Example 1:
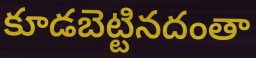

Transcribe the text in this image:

కూడబెట్టినదంతా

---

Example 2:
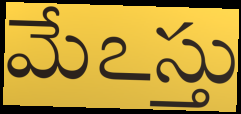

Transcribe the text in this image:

మేఽస్తు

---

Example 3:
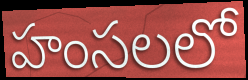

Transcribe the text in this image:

హంసలలో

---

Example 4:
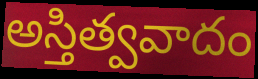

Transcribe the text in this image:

అస్తిత్వవాదం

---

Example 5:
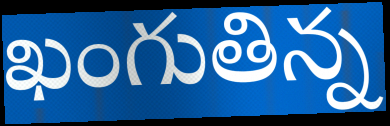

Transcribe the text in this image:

ఖంగుతిన్న